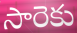
సారెకు